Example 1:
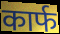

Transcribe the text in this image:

कार्फ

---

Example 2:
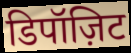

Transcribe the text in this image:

डिपॉज़िट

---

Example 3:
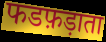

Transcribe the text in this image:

फडफ़ड़ाता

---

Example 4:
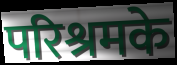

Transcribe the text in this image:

परिश्रमके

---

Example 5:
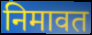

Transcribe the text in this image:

निमावत